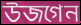
উজগেন